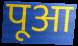
पूआ